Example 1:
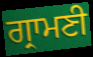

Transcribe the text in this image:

ਗ੍ਰਾਮਣੀ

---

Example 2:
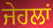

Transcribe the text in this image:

ਜੇਹਲਾਂ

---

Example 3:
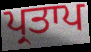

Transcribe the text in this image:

ਪ੍ਰਤਾਪ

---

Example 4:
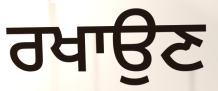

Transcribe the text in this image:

ਰਖਾਉਣ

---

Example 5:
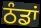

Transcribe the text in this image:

ਠੰਡਾਂ